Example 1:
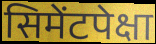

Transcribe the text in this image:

सिमेंटपेक्षा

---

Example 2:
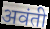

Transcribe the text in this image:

अवंती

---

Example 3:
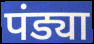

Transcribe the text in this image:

पंड्या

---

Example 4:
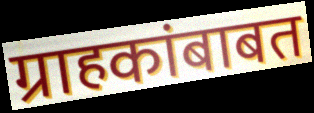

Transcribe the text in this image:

ग्राहकांबाबत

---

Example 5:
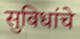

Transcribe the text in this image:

सुविधांचे